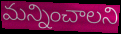
మన్నించాలని